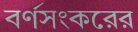
বর্ণসংকরের